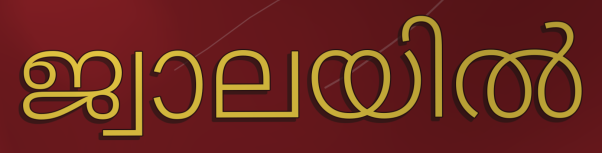
ജ്വാലയിൽ